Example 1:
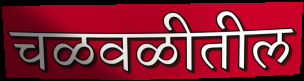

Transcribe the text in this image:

चळवळीतील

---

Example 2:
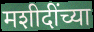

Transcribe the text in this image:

मशीदींच्या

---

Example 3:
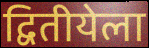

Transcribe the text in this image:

द्वितीयेला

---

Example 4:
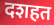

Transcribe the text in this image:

दशहत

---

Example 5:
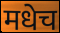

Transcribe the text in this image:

मधेच